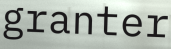
granter